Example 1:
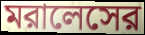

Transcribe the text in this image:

মরালেসের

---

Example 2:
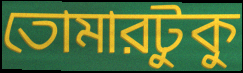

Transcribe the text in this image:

তোমারটুকু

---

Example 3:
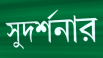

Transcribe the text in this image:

সুদর্শনার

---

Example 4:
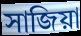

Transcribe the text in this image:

সাজিয়া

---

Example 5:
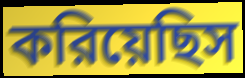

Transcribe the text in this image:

করিয়েছিস